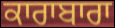
ਕਾਰਾਬਾਰਾ